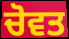
ਚੋਵਤ